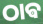
ଠାଵ